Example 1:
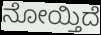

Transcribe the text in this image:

ನೋಯ್ತಿದೆ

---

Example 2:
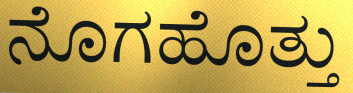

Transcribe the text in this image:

ನೊಗಹೊತ್ತು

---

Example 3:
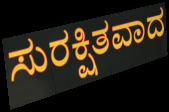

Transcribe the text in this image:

ಸುರಕ್ಷಿತವಾದ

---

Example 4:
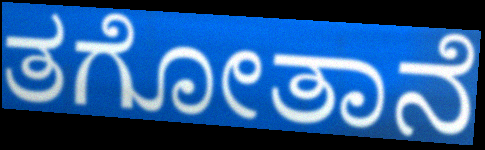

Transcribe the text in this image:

ತಗೋತಾನೆ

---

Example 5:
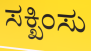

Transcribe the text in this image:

ಸಕ್ಖಿಂಸು